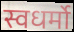
स्वधर्मो